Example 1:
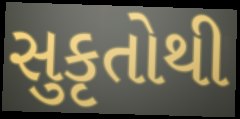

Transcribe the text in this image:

સુકૃતોથી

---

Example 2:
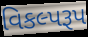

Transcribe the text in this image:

વિકલ્પરૂપ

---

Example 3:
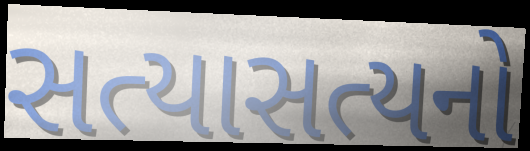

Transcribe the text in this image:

સત્યાસત્યનો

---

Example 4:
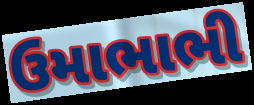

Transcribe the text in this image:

ઉમાભાભી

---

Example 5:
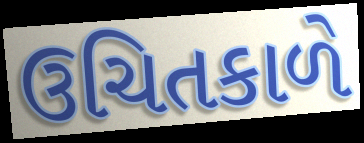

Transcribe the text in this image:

ઉચિતકાળે